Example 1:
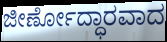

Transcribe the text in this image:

ಜೀರ್ಣೋದ್ಧಾರವಾದ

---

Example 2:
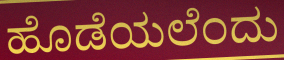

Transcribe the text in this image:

ಹೊಡೆಯಲೆಂದು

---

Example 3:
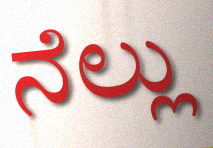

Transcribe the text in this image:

ನೆಲ್ಲು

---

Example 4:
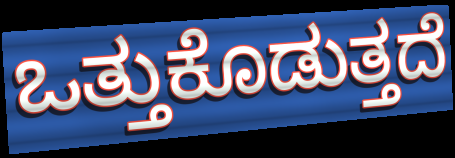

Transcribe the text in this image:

ಒತ್ತುಕೊಡುತ್ತದೆ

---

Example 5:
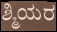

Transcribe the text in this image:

ಶ್ಮಿಯರ